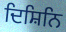
ਦਿਸ਼ਿਨਿ